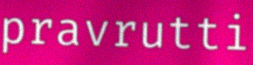
pravrutti